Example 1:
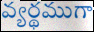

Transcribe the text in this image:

వ్యర్థముగా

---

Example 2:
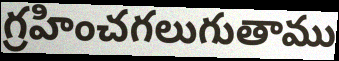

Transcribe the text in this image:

గ్రహించగలుగుతాము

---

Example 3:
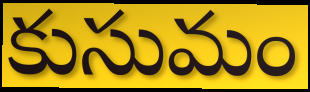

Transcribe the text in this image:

కుసుమం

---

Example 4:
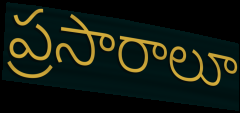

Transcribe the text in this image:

ప్రసారాలూ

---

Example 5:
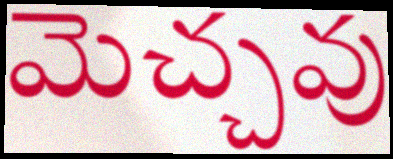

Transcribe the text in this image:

మెచ్చవు